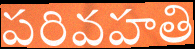
పరివహతి